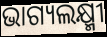
ଭାଗ୍ୟଲକ୍ଷ୍ମୀ